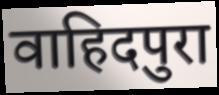
वाहिदपुरा